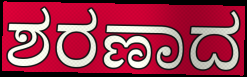
ಶರಣಾದ